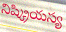
నిష్క్రియస్య